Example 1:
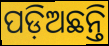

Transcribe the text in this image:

ପଡ଼ିଅଛନ୍ତି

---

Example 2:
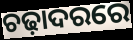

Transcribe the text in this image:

ଚଢ଼ାଦରରେ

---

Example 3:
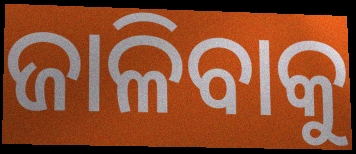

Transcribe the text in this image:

ଜାଳିବାକୁ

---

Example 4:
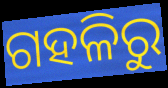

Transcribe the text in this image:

ଗହଳିରୁ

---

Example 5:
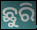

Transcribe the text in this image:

ଛୁରି